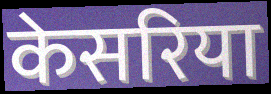
केसरिया